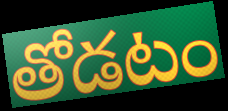
తోడటం